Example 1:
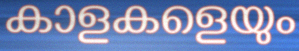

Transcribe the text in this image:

കാളകളെയും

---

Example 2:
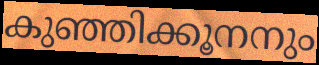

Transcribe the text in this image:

കുഞ്ഞിക്കൂനനും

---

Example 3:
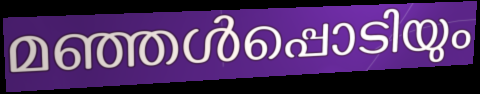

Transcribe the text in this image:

മഞ്ഞൾപ്പൊടിയും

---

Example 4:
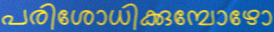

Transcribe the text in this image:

പരിശോധിക്കുമ്പോഴോ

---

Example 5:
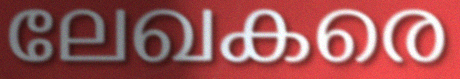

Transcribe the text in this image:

ലേഖകരെ